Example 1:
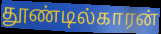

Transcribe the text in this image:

தூண்டில்காரன்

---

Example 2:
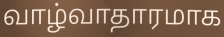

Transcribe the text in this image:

வாழ்வாதாரமாக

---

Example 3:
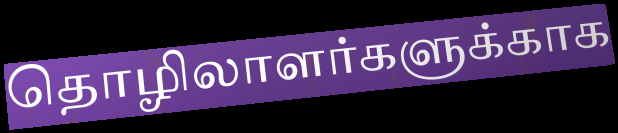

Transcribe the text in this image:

தொழிலாளர்களுக்காக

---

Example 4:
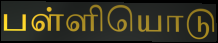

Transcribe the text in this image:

பள்ளியொடு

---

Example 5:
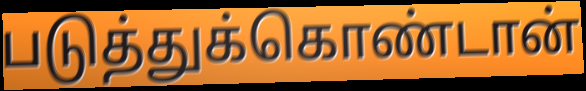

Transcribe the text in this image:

படுத்துக்கொண்டான்